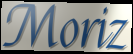
Moriz